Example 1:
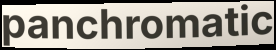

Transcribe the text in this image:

panchromatic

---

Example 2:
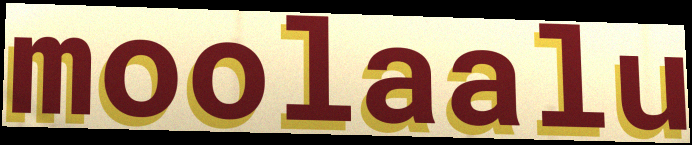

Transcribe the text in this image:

moolaalu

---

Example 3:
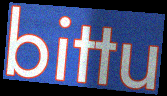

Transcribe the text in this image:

bittu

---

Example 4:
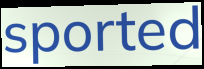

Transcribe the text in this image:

sported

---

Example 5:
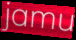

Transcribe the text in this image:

jamu